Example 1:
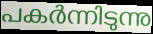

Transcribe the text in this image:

പകർന്നിടുന്നു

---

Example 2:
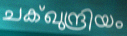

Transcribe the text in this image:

ചക്ഖുന്ദ്രിയം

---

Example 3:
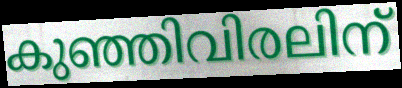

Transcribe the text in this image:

കുഞ്ഞിവിരലിന്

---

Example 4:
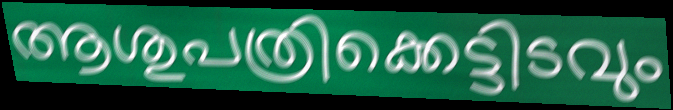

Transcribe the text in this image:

ആശുപത്രിക്കെട്ടിടവും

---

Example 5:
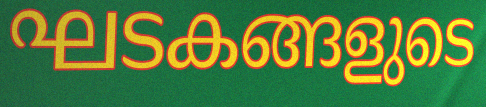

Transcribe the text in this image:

ഘടകങ്ങളുടെ